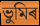
ভুমিৰ